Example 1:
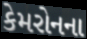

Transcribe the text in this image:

કેમરોનના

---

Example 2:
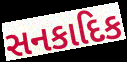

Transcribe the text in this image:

સનકાદિક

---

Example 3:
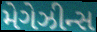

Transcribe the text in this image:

મેગેઝીન્સ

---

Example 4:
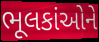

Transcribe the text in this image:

ભૂલકાંઓને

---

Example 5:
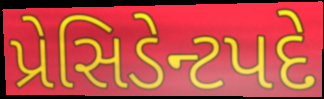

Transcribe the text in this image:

પ્રેસિડેન્ટપદે